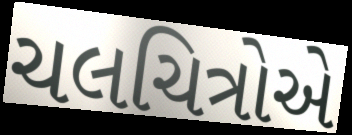
ચલચિત્રોએ